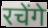
रचेंगे